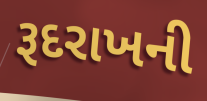
રૂદરાખની